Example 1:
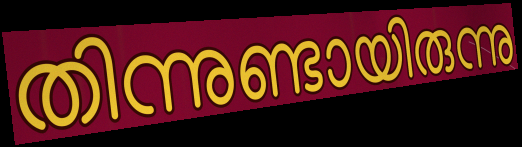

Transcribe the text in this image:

തിന്നുണ്ടായിരുന്നു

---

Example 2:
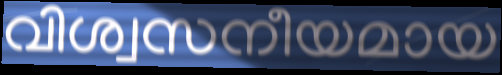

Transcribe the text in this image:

വിശ്വസനീയമായ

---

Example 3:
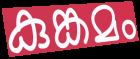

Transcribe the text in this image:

കുങ്കമം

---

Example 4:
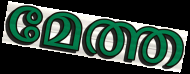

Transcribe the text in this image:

മേത്ത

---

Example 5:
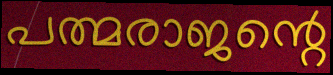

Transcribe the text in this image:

പത്മരാജന്റെ